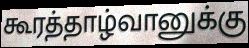
கூரத்தாழ்வானுக்கு